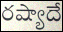
రష్యాదే